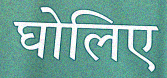
घोलिए